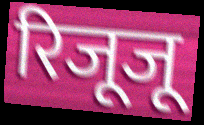
रिजूजू